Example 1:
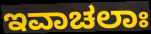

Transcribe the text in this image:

ಇವಾಚಲಾಃ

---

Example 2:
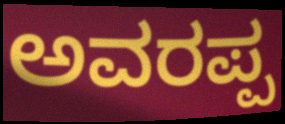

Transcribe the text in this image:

ಅವರಪ್ಪ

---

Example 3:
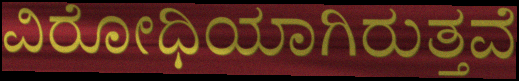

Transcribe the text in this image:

ವಿರೋಧಿಯಾಗಿರುತ್ತವೆ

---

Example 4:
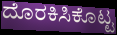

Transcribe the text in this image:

ದೊರಕಿಸಿಕೊಟ್ಟ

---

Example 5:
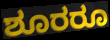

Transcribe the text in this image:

ಶೂರರೂ